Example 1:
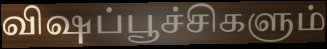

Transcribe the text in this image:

விஷப்பூச்சிகளும்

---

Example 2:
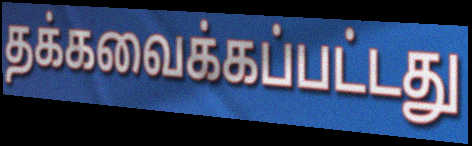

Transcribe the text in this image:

தக்கவைக்கப்பட்டது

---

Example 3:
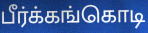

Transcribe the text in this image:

பீர்க்கங்கொடி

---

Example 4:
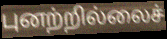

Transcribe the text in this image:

புனற்றில்லைச்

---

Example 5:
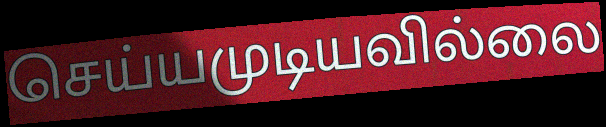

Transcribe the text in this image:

செய்யமுடியவில்லை